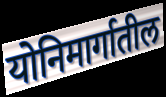
योनिमार्गातील